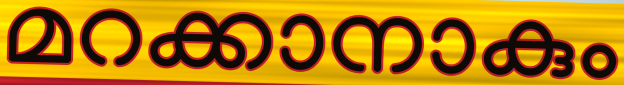
മറക്കാനാകും